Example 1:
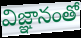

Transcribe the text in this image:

విజ్ఞానంతో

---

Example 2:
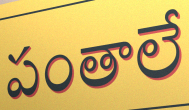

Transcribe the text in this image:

పంతాలే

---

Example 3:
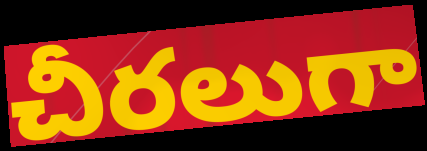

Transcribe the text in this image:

చీరలుగా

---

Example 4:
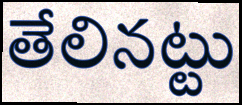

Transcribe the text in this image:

తేలినట్టు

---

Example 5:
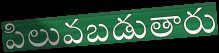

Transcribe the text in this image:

పిలువబడుతారు